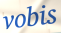
vobis